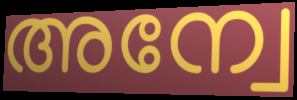
അന്വേ